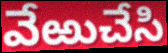
వేఱుచేసి